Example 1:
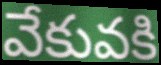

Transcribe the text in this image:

వేకువకి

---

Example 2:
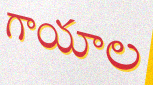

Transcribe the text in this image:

గాయాల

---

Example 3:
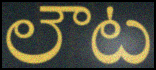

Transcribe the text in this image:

లౌట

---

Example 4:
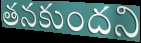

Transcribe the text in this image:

తనకుందని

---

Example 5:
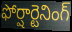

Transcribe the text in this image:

ఫోర్షార్టెనింగ్